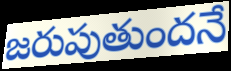
జరుపుతుందనే